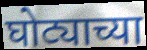
घोट्याच्या